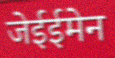
जेईईमेन